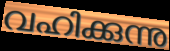
വഹിക്കുന്നു